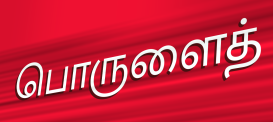
பொருளைத்